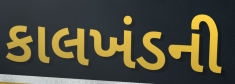
કાલખંડની